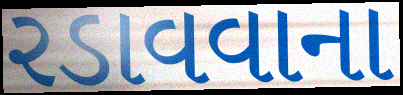
રડાવવાના